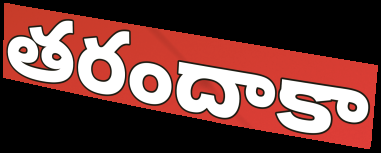
తరందాకా